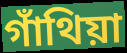
গাঁথিয়া